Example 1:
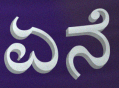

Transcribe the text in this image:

ಏನೆ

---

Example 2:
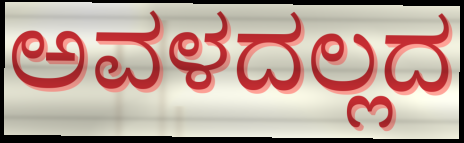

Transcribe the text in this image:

ಅವಳದಲ್ಲದ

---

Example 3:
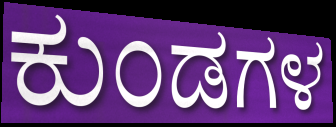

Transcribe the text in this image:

ಕುಂಡಗಳ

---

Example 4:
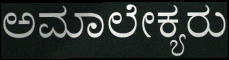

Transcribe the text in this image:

ಅಮಾಲೇಕ್ಯರು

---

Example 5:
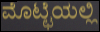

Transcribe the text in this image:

ಮೊಟ್ಟೆಯಲ್ಲಿ